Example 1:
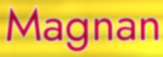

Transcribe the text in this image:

Magnan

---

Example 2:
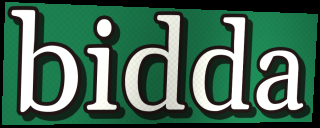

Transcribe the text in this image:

bidda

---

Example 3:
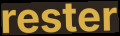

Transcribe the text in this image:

rester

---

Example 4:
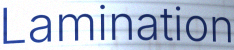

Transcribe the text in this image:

Lamination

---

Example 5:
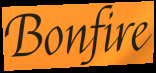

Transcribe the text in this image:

Bonfire